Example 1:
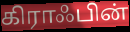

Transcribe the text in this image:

கிராஃபின்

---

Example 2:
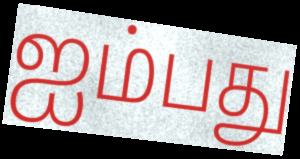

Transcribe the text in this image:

ஐம்பது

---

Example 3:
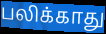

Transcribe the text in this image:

பலிக்காது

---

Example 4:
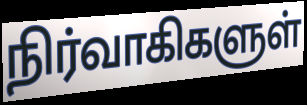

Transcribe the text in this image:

நிர்வாகிகளுள்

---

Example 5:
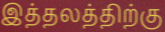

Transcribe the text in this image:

இத்தலத்திற்கு